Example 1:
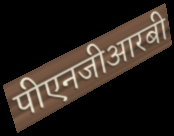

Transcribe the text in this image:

पीएनजीआरबी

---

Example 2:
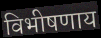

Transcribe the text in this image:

विभीषणाय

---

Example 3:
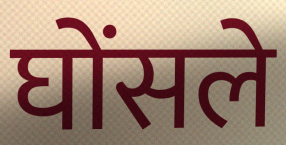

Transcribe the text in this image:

घोंसले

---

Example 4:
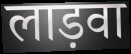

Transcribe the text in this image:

लाड़वा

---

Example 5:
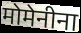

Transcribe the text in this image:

मोमेनीना